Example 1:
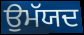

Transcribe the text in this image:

ਉਮੱਯਦ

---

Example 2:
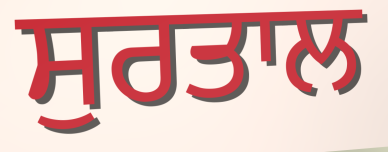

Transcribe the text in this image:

ਸੁਰਤਾਲ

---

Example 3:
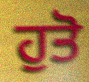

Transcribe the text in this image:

ਹੁਤੋ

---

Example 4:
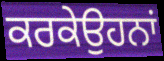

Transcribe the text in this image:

ਕਰਕੇਉਹਨਾਂ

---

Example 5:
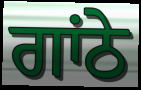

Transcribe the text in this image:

ਗਾਂਠੇ